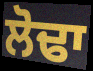
ਲੋਢਾ